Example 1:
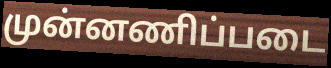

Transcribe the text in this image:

முன்னணிப்படை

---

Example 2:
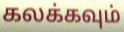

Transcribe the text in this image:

கலக்கவும்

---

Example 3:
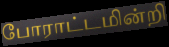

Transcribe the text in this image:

போராட்டமின்றி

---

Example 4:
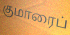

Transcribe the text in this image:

குமாரைப்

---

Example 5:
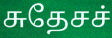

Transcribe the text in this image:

சுதேசச்